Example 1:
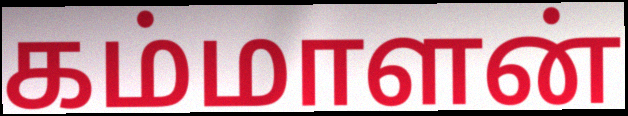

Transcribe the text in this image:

கம்மாளன்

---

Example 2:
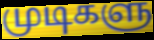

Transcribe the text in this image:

முடிகளு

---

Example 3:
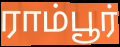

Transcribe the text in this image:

ராம்பூர்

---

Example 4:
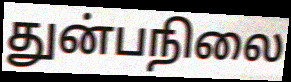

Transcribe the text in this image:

துன்பநிலை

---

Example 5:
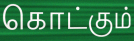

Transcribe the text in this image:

கொட்கும்